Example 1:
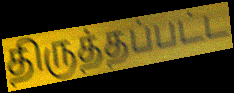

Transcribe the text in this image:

திருத்தப்பட்ட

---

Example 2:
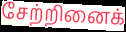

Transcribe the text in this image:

சேற்றினைக்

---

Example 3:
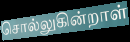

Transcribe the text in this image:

சொல்லுகின்றாள்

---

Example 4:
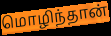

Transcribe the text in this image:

மொழிந்தான்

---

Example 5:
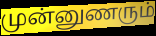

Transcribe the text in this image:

முன்னுணரும்